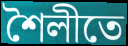
শৈলীতে